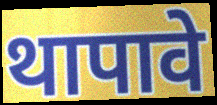
थापावे